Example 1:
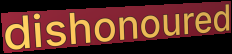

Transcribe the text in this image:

dishonoured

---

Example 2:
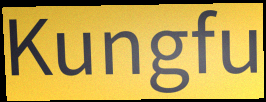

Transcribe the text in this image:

Kungfu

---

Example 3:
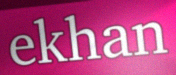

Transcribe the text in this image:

ekhan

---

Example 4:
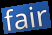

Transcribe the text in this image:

fair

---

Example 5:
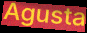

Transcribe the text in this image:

Agusta